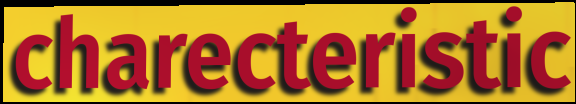
charecteristic